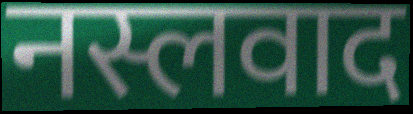
नस्लवाद